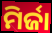
ମିର୍ଜା